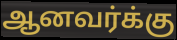
ஆனவர்க்கு